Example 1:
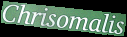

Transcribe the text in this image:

Chrisomalis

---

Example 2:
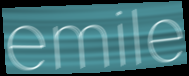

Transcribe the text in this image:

emile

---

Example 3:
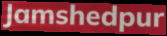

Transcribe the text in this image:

Jamshedpur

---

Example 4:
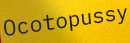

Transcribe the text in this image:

Ocotopussy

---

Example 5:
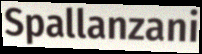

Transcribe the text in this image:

Spallanzani